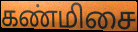
கண்மிசை